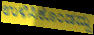
ಉಳಿಸಿಕೊಂಡದ್ದು